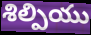
శిల్పియు